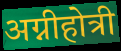
अग्नीहोत्री